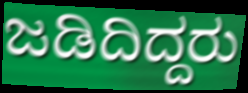
ಜಡಿದಿದ್ದರು